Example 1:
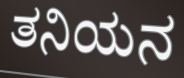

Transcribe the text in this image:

ತನಿಯನ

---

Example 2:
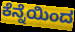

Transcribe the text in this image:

ಕೆನ್ನೆಯಿಂದ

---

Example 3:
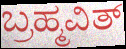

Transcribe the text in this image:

ಬ್ರಹ್ಮವಿತ್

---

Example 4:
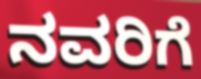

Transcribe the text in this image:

ನವರಿಗೆ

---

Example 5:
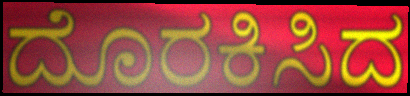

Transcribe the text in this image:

ದೊರಕಿಸಿದ